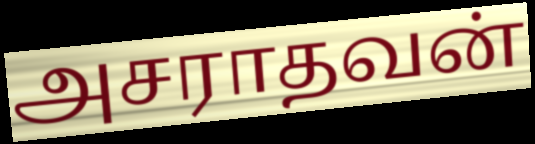
அசராதவன்